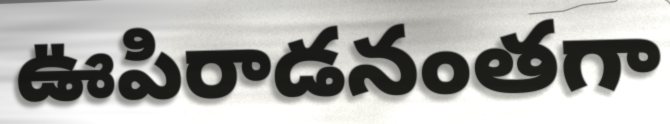
ఊపిరాడనంతగా